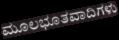
ಮೂಲಭೂತವಾದಿಗಳು